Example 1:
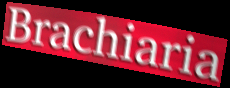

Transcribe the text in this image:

Brachiaria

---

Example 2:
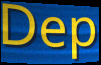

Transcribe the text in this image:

Dep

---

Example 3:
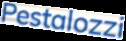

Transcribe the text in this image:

Pestalozzi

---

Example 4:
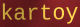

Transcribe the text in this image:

kartoy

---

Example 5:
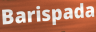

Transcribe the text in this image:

Barispada